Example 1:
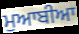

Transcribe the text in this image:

ਮੁਆਬੀਆ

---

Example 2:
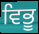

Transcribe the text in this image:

ਵਿਭੂ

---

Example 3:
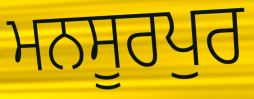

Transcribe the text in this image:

ਮਨਸੂਰਪੁਰ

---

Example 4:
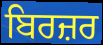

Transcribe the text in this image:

ਬਿਰਜ਼ਰ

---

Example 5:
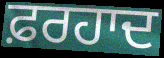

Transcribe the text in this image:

ਫ਼ਰਹਾਦ